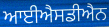
ਆਈਐਸਡੀਐਨ